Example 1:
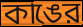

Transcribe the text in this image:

কাঙের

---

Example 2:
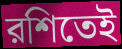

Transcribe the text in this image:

রশিতেই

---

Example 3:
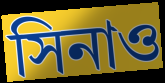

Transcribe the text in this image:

সিনাও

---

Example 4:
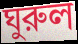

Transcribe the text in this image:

ঘুরুল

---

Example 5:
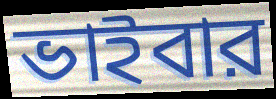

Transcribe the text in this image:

ভাইবার